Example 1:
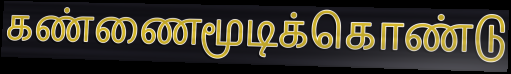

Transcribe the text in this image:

கண்ணைமூடிக்கொண்டு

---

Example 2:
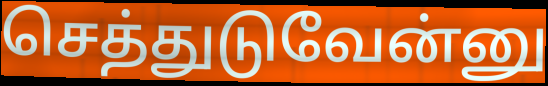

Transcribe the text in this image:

செத்துடுவேன்னு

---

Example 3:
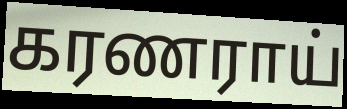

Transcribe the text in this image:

கரணராய்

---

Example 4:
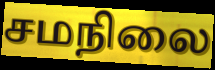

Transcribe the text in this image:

சமநிலை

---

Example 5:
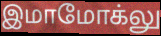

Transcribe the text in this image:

இமாமோக்லு